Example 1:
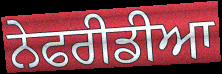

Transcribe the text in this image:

ਨੇਫਰੀਡੀਆ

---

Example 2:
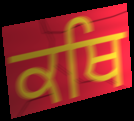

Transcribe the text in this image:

ਕਥਿ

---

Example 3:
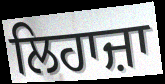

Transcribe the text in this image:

ਲਿਹਾਜ਼ਾ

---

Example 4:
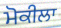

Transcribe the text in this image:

ਮੋਕੀਲਾ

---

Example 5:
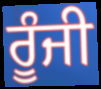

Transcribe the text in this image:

ਰੂੰਜੀ